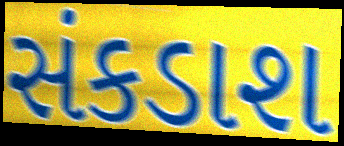
સંકડાશ